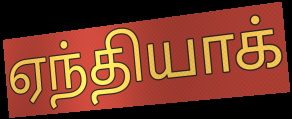
ஏந்தியாக்